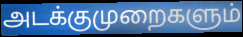
அடக்குமுறைகளும்